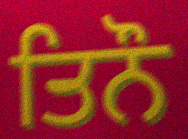
ਤਿਨੌ